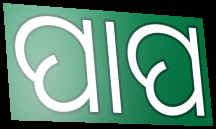
ପାପ